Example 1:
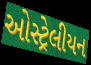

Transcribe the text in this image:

ઓસ્ટ્રેલીયન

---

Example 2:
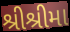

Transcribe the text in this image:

શ્રીશ્રીમા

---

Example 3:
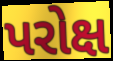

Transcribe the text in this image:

પરોક્ષ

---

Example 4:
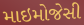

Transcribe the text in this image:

માઇમોજેસી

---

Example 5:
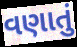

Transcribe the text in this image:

વણાતું